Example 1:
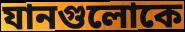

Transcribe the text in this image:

যানগুলোকে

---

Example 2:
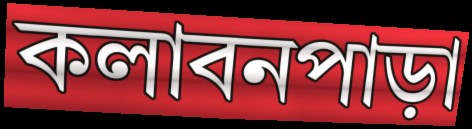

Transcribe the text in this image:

কলাবনপাড়া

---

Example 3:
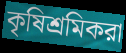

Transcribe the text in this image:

কৃষিশ্রমিকরা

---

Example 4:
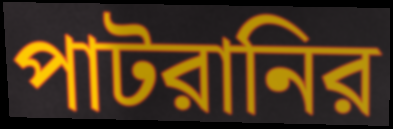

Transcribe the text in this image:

পাটরানির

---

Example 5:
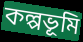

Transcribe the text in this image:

কল্পভূমি